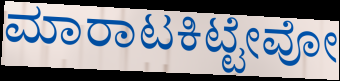
ಮಾರಾಟಕಿಟ್ಟೇವೋ